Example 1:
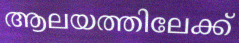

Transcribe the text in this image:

ആലയത്തിലേക്ക്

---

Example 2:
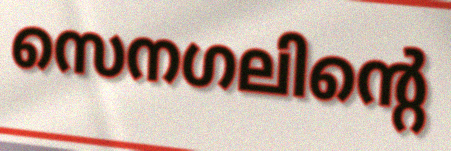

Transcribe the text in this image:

സെനഗലിന്റെ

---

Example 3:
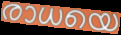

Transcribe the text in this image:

രാധയെ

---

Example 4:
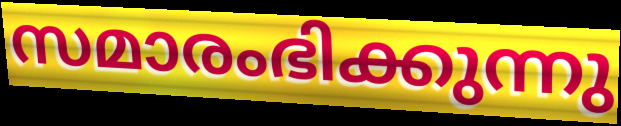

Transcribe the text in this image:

സമാരംഭിക്കുന്നു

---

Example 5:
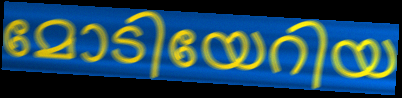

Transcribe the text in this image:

മോടിയേറിയ